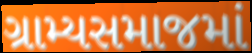
ગ્રામ્યસમાજમાં